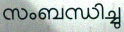
സംബന്ധിച്ചു